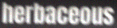
herbaceous